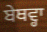
ਬੇਥਵ੍ਹਾ